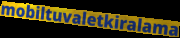
mobiltuvaletkiralama